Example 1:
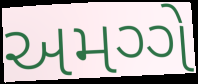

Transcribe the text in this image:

અમગ્ગે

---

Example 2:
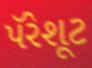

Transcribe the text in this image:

પૅરેશૂટ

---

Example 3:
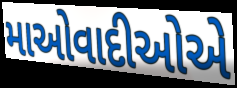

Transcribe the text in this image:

માઓવાદીઓએ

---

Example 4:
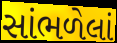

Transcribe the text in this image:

સાંભળેલાં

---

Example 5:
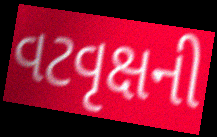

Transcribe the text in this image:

વટવૃક્ષની